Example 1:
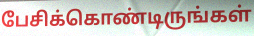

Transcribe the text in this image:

பேசிக்கொண்டிருங்கள்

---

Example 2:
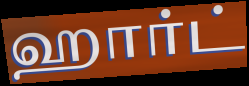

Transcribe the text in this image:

ஹார்ட்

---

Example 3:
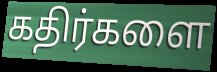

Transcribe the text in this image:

கதிர்களை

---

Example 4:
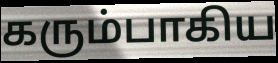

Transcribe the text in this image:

கரும்பாகிய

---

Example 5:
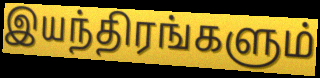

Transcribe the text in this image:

இயந்திரங்களும்